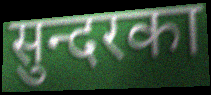
सुन्दरका